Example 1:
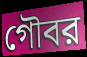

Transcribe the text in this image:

গৌবর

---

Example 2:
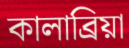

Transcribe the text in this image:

কালাব্রিয়া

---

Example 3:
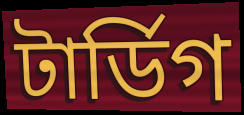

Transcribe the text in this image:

টার্ডিগ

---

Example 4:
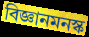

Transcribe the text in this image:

বিজ্ঞানমনস্ক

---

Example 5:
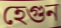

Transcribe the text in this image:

হেগুন